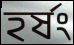
হর্ষং